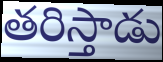
తరిస్తాడు